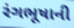
રંગભૂષાની